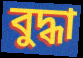
বুদ্ধা